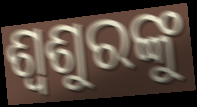
ଶ୍ୱଶୁରଙ୍କୁ